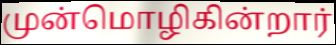
முன்மொழிகின்றார்